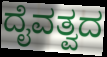
ದೈವತ್ವದ